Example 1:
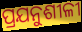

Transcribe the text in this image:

ପ୍ରଯନୁଶୀଳୀ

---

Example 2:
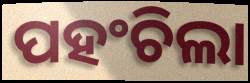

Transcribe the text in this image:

ପହଂଚିଲା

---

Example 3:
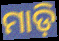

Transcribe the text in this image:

ମାଡ଼ି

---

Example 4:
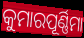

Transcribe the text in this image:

କୁମାରପୂର୍ଣ୍ଣିମା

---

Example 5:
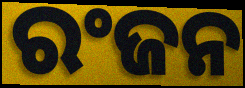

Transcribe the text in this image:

ରଂଜନ